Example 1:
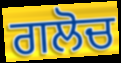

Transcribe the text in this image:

ਗਲੋਚ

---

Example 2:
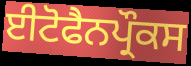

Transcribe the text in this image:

ਈਟੋਫੈਨਪ੍ਰੌਕਸ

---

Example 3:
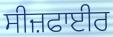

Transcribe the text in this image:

ਸੀਜ਼ਫਾਈਰ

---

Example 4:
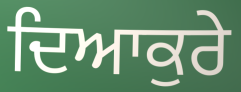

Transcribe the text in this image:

ਦਿਆਕੁਰੇ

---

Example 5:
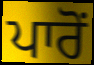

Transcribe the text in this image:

ਪਾਰੋਂ